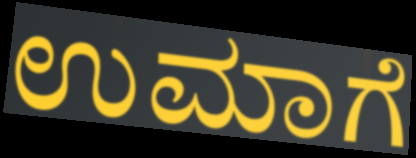
ಉಮಾಗೆ